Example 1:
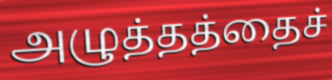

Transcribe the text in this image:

அழுத்தத்தைச்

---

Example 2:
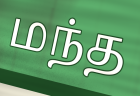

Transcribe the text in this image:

மந்த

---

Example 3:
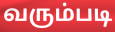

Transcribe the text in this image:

வரும்படி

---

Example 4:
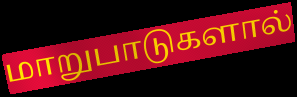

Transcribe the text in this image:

மாறுபாடுகளால்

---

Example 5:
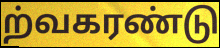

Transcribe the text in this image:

ற்வகரண்டு